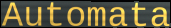
Automata